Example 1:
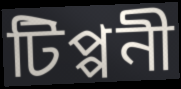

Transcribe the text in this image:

টিপ্পনী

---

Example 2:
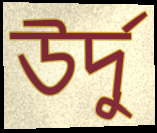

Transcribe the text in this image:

উর্দু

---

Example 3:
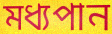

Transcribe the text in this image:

মধ্যপান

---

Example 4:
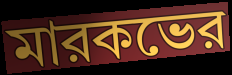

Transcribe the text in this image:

মারকভের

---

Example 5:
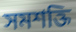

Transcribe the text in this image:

সমশক্তি